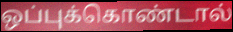
ஒப்புக்கொண்டால்